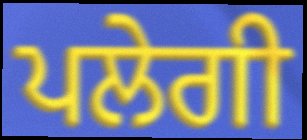
ਪਲੇਗੀ